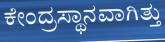
ಕೇಂದ್ರಸ್ಥಾನವಾಗಿತ್ತು